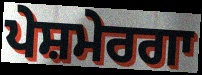
ਪੇਸ਼ਮੇਰਗਾ